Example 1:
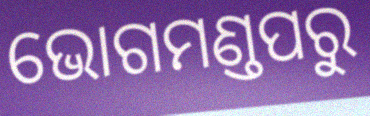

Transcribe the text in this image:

ଭୋଗମଣ୍ଡପରୁ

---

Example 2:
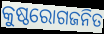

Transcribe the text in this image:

କୁଷ୍ଠରୋଗଜନିତ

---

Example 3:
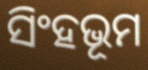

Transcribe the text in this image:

ସିଂହଭୂମ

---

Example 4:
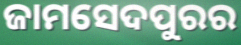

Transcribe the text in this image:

ଜାମସେଦପୁରର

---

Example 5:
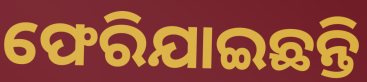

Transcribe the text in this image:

ଫେରିଯାଇଛନ୍ତି